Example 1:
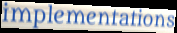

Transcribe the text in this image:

implementations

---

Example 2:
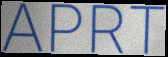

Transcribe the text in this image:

APRT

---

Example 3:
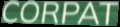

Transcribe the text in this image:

CORPAT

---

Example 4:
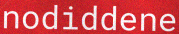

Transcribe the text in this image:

nodiddene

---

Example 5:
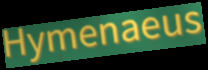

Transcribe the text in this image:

Hymenaeus